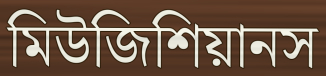
মিউজিশিয়ানস